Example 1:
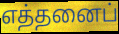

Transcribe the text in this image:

எத்தனைப்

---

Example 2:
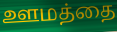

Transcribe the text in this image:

ஊமத்தை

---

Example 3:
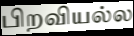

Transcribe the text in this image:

பிறவியல்ல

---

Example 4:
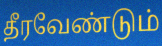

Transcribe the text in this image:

தீரவேண்டும்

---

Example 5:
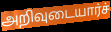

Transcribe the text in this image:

அறிவுடையார்ச்